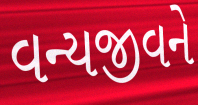
વન્યજીવને